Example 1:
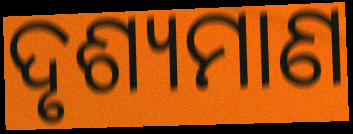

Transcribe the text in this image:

ଦୃଶ୍ୟମାଣ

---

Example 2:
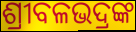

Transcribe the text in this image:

ଶ୍ରୀବଳଭଦ୍ରଙ୍କ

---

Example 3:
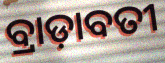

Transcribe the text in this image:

ବ୍ରାଡ଼ାବତୀ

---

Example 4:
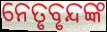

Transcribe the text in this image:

ନେତୃବୃନ୍ଦଙ୍କ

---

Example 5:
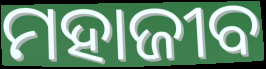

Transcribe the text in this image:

ମହାଜୀବ